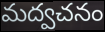
మద్వచనం